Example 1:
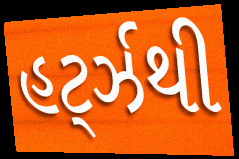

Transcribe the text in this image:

હર્ટ્ઝથી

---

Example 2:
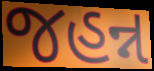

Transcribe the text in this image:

જહન્ન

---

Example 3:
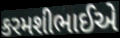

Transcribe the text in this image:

કરમશીભાઈએ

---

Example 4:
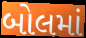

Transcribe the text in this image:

બોલમાં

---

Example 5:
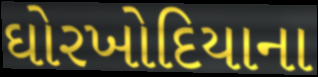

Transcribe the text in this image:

ઘોરખોદિયાના